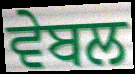
ਵੇਬਲ